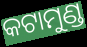
କଟାମୁଣ୍ଡ